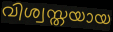
വിശ്വസ്തയായ